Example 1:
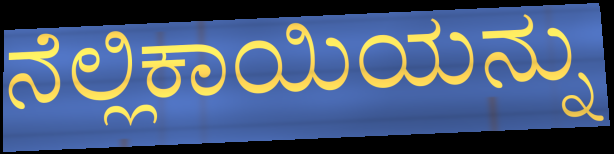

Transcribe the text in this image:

ನೆಲ್ಲಿಕಾಯಿಯನ್ನು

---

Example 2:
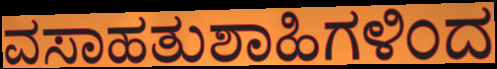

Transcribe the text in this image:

ವಸಾಹತುಶಾಹಿಗಳಿಂದ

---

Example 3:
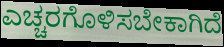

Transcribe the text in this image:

ಎಚ್ಚರಗೊಳಿಸಬೇಕಾಗಿದೆ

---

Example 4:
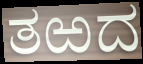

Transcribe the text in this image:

ತಱದ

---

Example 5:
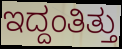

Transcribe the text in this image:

ಇದ್ದಂತಿತ್ತು